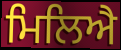
ਮਿਲਿਐ